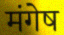
मंगेष